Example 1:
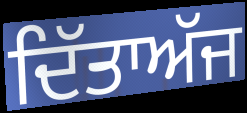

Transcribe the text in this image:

ਦਿੱਤਾਅੱਜ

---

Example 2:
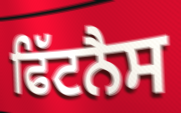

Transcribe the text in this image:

ਫਿੱਟਨੈਸ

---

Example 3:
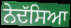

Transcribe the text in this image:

ਨੇਦੱਸਿਆ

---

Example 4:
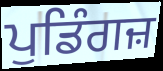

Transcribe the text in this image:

ਪੁਡਿੰਗਜ਼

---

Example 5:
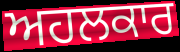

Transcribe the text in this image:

ਅਹਲਕਾਰ